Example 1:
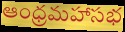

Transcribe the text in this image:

ఆంధ్రమహాసభ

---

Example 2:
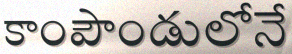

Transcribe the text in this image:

కాంపౌండులోనే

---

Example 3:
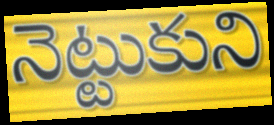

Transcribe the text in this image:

నెట్టుకుని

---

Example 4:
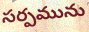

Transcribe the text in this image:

సర్పమును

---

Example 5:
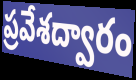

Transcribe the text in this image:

ప్రవేశద్వారం